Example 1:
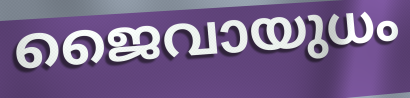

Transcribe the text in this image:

ജൈവായുധം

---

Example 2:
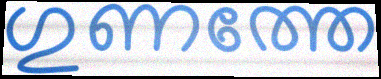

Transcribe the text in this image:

ഗുണത്തേ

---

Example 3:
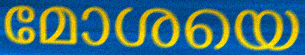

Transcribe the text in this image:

മോശയെ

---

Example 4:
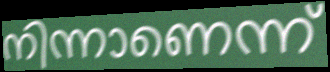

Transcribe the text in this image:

നിന്നാണെന്ന്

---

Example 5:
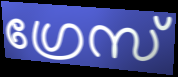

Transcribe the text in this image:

ഗ്രേസ്